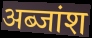
अब्जांश